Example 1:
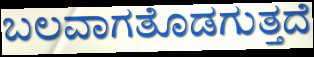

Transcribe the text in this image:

ಬಲವಾಗತೊಡಗುತ್ತದೆ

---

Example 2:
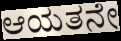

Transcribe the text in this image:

ಆಯತನೇ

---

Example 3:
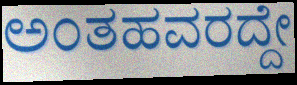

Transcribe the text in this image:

ಅಂತಹವರದ್ದೇ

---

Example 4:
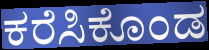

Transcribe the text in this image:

ಕರೆಸಿಕೊಂಡ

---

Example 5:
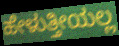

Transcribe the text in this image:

ಹೇಳುತ್ತೀಯಲ್ಲ